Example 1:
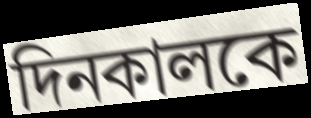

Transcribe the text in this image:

দিনকালকে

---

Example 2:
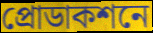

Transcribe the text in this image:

প্রোডাকশনে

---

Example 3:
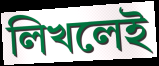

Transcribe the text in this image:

লিখলেই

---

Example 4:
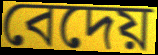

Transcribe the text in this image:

বেদেয়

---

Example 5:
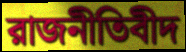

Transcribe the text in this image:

রাজনীতিবীদ